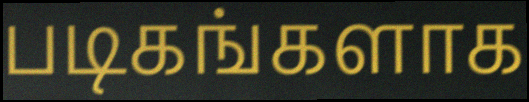
படிகங்களாக